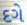
દગે